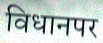
विधानपर